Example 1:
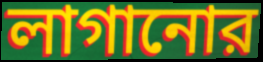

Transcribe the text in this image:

লাগানোর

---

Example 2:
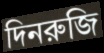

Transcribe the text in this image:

দিনরুজি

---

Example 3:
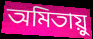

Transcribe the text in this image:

অমিতায়ু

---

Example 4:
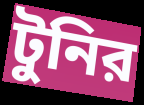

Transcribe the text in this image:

টুনির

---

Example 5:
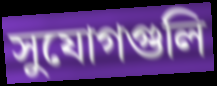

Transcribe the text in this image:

সুযোগগুলি